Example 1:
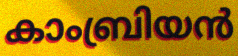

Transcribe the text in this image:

കാംബ്രിയൻ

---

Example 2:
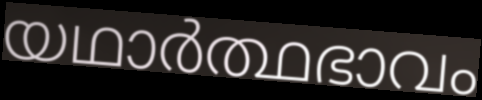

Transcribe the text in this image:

യഥാർത്ഥഭാവം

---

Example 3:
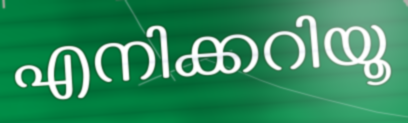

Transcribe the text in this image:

എനിക്കറിയൂ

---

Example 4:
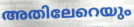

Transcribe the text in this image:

അതിലേറെയും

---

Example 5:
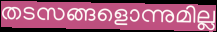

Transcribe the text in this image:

തടസങ്ങളൊന്നുമില്ല